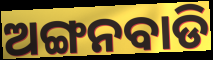
ଅଙ୍ଗନବାଡି